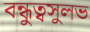
বন্ধুত্বসুলভ